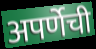
अपर्णेची